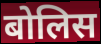
बोलिस